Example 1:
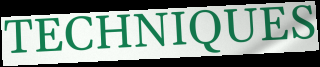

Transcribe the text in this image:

TECHNIQUES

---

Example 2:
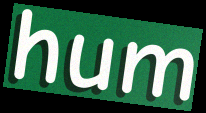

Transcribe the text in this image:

hum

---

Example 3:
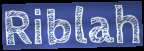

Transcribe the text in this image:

Riblah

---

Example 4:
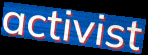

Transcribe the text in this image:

activist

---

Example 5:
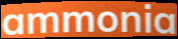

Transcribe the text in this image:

ammonia